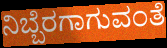
ನಿಬ್ಬೆರಗಾಗುವಂತೆ